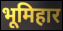
भूमिहार